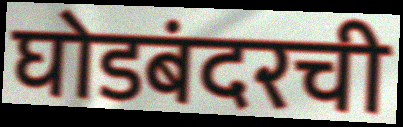
घोडबंदरची